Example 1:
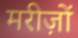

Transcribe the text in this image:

मरीज़ों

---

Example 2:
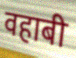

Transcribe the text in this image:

वहाबी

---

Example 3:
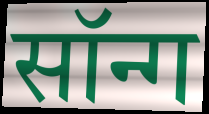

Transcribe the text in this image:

सॉन्ग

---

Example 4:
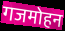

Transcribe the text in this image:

गजमोहन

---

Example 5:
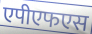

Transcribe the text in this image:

एपीएफएस